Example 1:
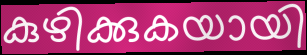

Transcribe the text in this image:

കുഴിക്കുകയായി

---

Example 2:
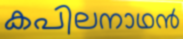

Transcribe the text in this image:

കപിലനാഥൻ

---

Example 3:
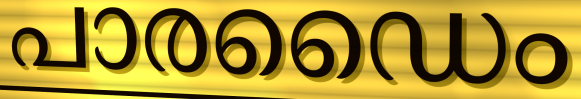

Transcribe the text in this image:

പാരഡൈം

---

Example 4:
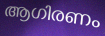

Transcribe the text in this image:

ആഗിരണം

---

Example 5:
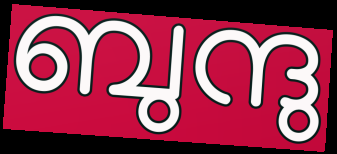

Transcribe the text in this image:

ബുന്ദു